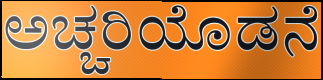
ಅಚ್ಚರಿಯೊಡನೆ